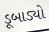
ડૂબાડ્યો